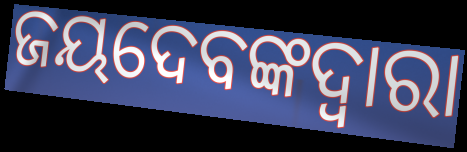
ଜୟଦେବଙ୍କଦ୍ୱାରା